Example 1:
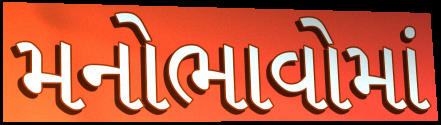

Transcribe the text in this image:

મનોભાવોમાં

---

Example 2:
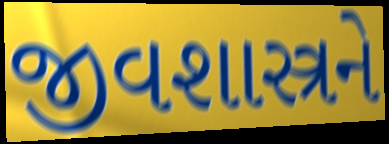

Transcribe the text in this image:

જીવશાસ્ત્રને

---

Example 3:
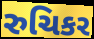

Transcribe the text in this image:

રુચિકર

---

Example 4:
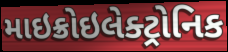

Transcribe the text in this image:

માઇક્રોઇલેક્ટ્રોનિક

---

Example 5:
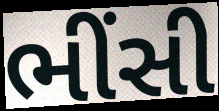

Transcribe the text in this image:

ભીંસી